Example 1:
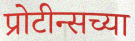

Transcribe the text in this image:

प्रोटीन्सच्या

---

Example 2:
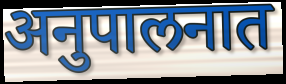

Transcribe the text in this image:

अनुपालनात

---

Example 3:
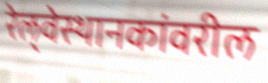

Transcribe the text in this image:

रेल्वेस्थानकांवरील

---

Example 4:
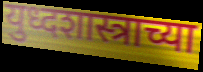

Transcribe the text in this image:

युध्दशास्त्राच्या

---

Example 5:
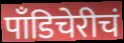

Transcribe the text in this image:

पाँडिचेरीचं